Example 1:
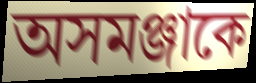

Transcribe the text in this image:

অসমঞ্জাকে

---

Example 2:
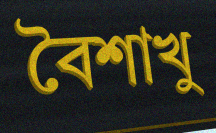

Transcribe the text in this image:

বৈশাখু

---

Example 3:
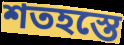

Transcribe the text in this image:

শতহস্তে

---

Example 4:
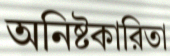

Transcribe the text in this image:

অনিষ্টকারিতা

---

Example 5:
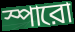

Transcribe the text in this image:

স্পারো